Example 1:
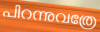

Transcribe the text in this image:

പിറന്നുവത്രേ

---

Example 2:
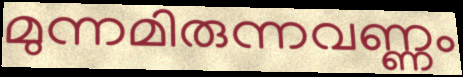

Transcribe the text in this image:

മുന്നമിരുന്നവണ്ണം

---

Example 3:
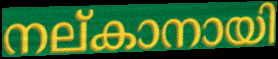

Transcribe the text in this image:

നല്കാനായി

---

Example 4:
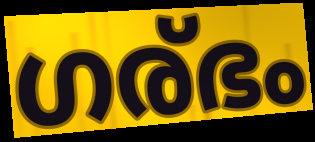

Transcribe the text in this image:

ഗര്ഭം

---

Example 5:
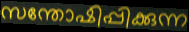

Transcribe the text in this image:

സന്തോഷിപ്പിക്കുന്ന